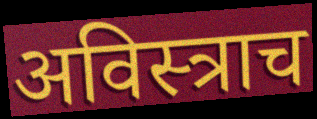
अविस्त्राच